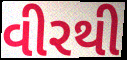
વીરથી